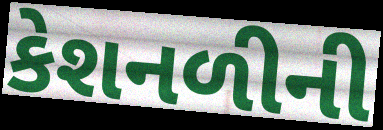
કેશનળીની